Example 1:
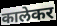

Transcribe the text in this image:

कालेकर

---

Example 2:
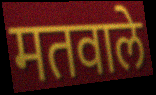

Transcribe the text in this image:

मतवाले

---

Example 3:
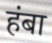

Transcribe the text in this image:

हंबा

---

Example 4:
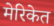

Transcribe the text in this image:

मेरिकेत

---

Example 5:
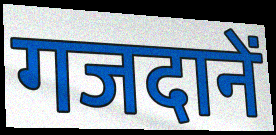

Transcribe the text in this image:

गजदानें